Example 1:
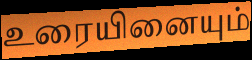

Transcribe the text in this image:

உரையினையும்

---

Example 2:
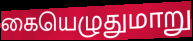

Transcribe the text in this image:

கையெழுதுமாறு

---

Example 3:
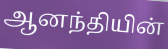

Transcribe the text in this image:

ஆனந்தியின்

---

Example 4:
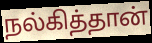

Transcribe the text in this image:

நல்கித்தான்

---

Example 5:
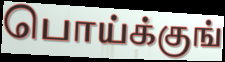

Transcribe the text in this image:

பொய்க்குங்